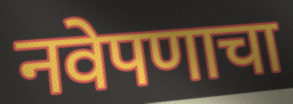
नवेपणाचा